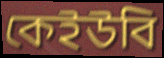
কেইউবি